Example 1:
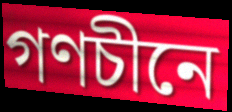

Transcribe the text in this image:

গণচীনে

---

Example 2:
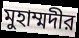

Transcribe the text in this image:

মুহাম্মদীর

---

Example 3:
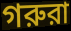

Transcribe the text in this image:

গরুরা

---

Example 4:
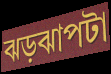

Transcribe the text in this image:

ঝড়ঝাপটা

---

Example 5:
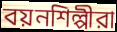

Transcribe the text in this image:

বয়নশিল্পীরা